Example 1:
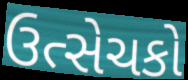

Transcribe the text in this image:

ઉત્સેચકો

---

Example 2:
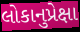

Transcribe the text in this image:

લોકાનુપ્રેક્ષા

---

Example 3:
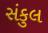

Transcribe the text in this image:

સંકુલ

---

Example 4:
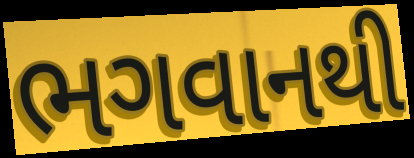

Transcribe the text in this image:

ભગવાનથી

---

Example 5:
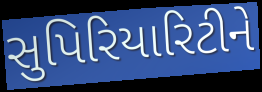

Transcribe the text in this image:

સુપિરિયારિટીને